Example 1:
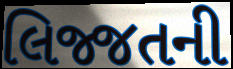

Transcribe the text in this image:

લિજ્જતની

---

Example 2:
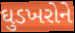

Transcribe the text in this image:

ઘુડખરોને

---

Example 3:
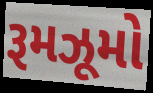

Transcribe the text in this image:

રૂમઝૂમો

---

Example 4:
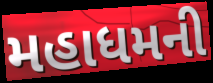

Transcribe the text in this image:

મહાધમની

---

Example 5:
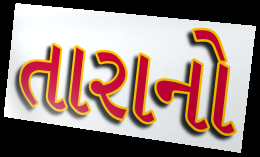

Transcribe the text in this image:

તારાનો